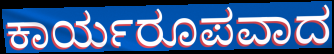
ಕಾರ್ಯರೂಪವಾದ